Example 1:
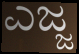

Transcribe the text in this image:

ಎಜ್ಜ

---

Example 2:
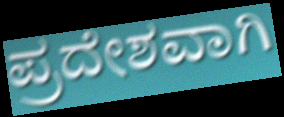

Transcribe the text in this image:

ಪ್ರದೇಶವಾಗಿ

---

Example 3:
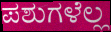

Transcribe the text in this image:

ಪಶುಗಳೆಲ್ಲ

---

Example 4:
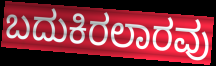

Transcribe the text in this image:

ಬದುಕಿರಲಾರವು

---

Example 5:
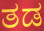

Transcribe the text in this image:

ತಡ